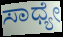
ಸಾಧ್ಯೇ